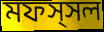
মফস্‌সল